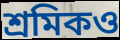
শ্রমিকও